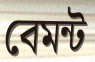
বেমন্ট